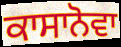
ਕਾਸਾਨੋਵਾ